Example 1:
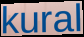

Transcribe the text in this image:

kural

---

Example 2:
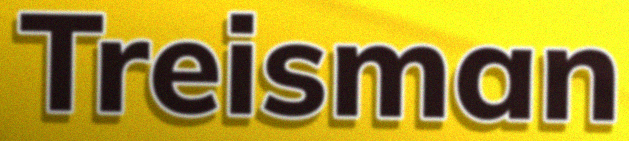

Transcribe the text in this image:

Treisman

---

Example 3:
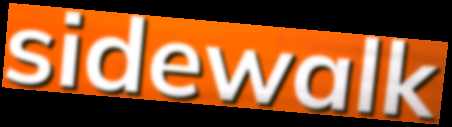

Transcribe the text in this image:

sidewalk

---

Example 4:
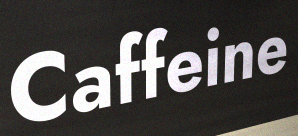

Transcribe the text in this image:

Caffeine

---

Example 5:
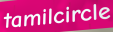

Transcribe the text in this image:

tamilcircle